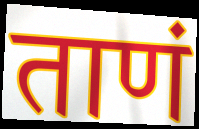
ताणं